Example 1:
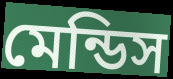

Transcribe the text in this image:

মেন্ডিস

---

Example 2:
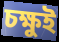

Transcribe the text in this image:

চক্ষুই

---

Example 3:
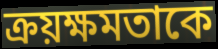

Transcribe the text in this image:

ক্রয়ক্ষমতাকে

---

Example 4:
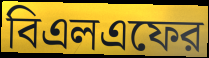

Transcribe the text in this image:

বিএলএফের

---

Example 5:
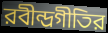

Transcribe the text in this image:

রবীন্দ্রগীতির